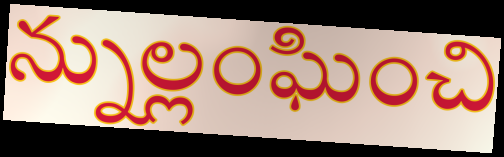
న్నుల్లంఘించి